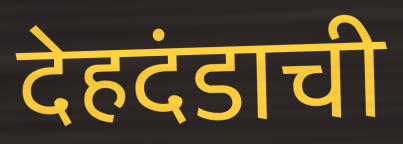
देहदंडाची